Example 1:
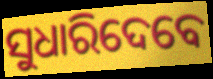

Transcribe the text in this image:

ସୁଧାରିଦେବେ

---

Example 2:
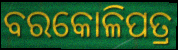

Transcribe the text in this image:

ବରକୋଳିପତ୍ର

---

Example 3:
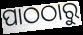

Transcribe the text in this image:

ପାଠଠାରୁ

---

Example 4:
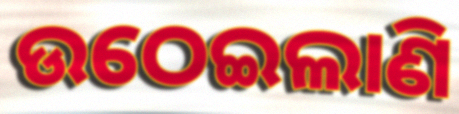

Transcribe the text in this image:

ଉଠେଇଲାଣି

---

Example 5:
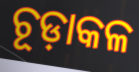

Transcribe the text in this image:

ଚୂଡ଼ାକଳ